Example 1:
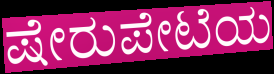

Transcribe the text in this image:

ಷೇರುಪೇಟೆಯ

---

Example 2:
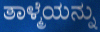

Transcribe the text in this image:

ತಾಳ್ಮೆಯನ್ನು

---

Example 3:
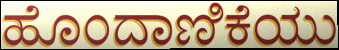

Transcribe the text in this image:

ಹೊಂದಾಣಿಕೆಯು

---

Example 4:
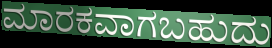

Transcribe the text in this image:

ಮಾರಕವಾಗಬಹುದು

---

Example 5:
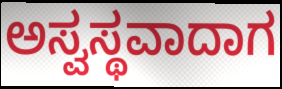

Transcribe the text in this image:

ಅಸ್ವಸ್ಥವಾದಾಗ